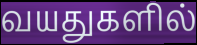
வயதுகளில்